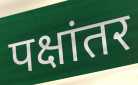
पक्षांतर